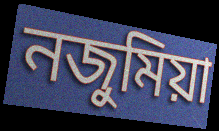
নজুমিয়া